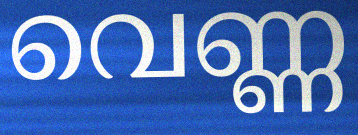
വെണ്ണ